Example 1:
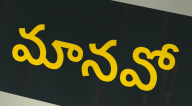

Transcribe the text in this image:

మానవో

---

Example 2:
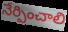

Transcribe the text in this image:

నేర్పించాలి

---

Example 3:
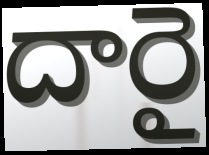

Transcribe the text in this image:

దారై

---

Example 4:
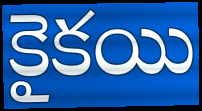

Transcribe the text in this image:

కైకయి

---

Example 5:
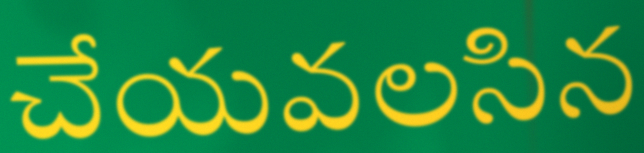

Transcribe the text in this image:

చేయవలసిన